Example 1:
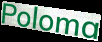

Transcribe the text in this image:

Poloma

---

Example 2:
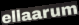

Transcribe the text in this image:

ellaarum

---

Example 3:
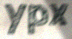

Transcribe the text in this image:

ypx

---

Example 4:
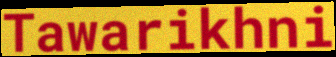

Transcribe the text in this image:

Tawarikhni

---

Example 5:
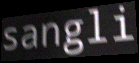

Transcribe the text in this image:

sangli